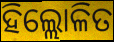
ହିଲ୍ଲୋଳିତ